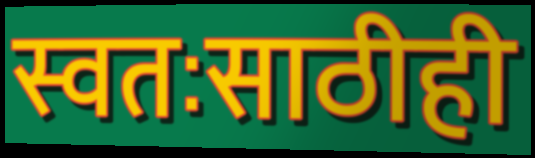
स्वतःसाठीही